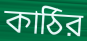
কাঠির